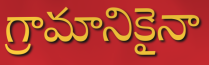
గ్రామానికైనా